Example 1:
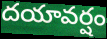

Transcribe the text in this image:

దయావర్షం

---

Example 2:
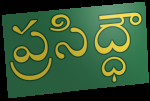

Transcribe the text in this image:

ప్రసిద్ధౌ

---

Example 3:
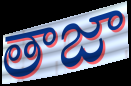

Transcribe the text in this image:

తాజా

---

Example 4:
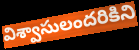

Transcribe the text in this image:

విశ్వాసులందరికిని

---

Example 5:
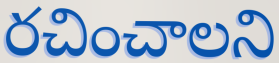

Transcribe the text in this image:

రచించాలని